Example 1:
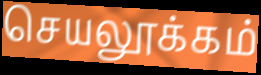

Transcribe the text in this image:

செயலூக்கம்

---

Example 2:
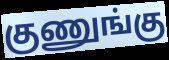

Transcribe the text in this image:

குணுங்கு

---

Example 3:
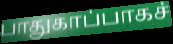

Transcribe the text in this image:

பாதுகாப்பாகச்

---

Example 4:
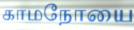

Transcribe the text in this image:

காமநோயை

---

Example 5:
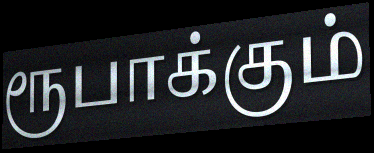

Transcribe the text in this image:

ரூபாக்கும்